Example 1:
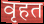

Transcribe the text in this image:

वृहत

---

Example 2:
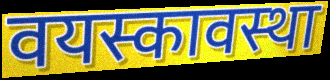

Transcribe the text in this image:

वयस्कावस्था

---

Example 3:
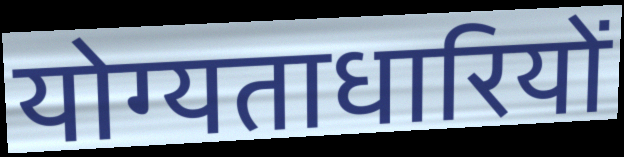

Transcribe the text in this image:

योग्यताधारियों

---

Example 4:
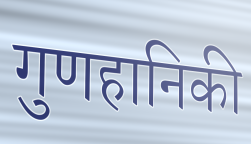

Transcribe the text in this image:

गुणहानिकी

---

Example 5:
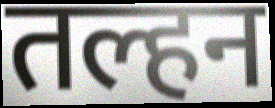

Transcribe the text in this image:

तल्हन